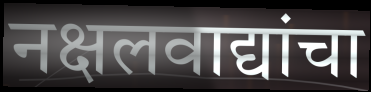
नक्षलवाद्यांचा